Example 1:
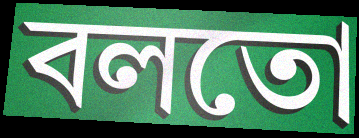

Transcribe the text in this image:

বলতো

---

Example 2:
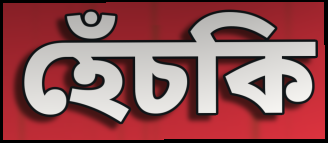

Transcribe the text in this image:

হেঁচকি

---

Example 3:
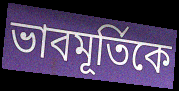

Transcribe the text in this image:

ভাবমূর্তিকে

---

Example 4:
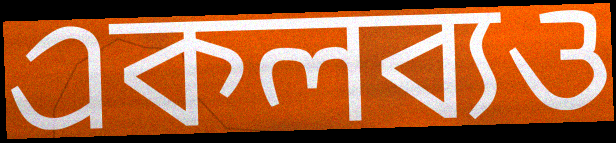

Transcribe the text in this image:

একলব্যও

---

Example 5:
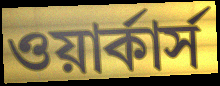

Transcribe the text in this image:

ওয়ার্কার্স